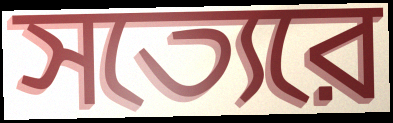
সত্যেরে